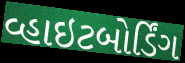
વ્હાઇટબોર્ડિંગ